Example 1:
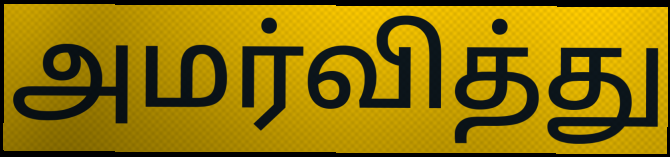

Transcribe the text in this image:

அமர்வித்து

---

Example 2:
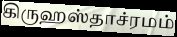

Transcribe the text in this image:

கிருஹஸ்தாச்ரமம்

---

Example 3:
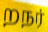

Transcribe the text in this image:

றநர்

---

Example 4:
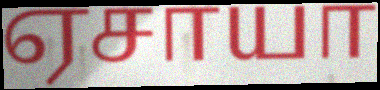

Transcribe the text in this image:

ஏசாயா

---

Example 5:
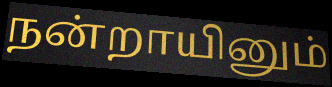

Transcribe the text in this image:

நன்றாயினும்